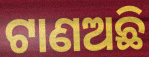
ଟାଣଅଛି